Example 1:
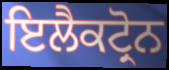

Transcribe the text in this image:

ਇਲੈਕਟ੍ਰੋਨ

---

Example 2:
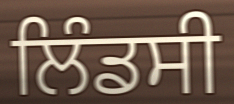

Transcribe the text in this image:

ਲਿੰਡਸੀ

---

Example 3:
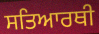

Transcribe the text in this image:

ਸਤਿਆਰਥੀ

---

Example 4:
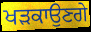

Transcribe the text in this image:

ਖੜਕਾਉਣਗੇ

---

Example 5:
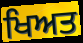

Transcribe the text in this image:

ਖਿਅਤ